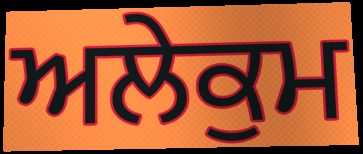
ਅਲੇਕੁਮ